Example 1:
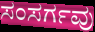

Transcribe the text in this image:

ಸಂಸರ್ಗವು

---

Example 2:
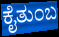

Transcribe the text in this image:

ಕೈತುಂಬ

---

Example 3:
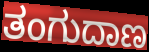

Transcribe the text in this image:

ತಂಗುದಾಣ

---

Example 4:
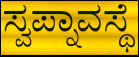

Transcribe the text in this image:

ಸ್ವಪ್ನಾವಸ್ಥೆ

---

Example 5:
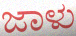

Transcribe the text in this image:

ಜಾಳು